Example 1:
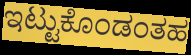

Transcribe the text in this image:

ಇಟ್ಟುಕೊಂಡಂತಹ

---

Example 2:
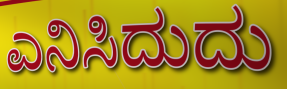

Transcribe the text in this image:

ಎನಿಸಿದುದು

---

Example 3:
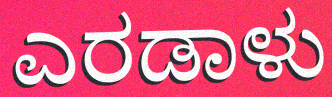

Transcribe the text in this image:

ಎರಡಾಳು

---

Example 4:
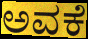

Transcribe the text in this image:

ಅವಕೆ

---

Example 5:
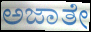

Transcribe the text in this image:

ಅಜಾತೇ